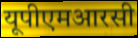
यूपीएमआरसी